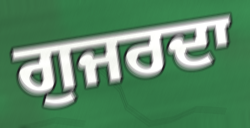
ਗੁਜਰਦਾ